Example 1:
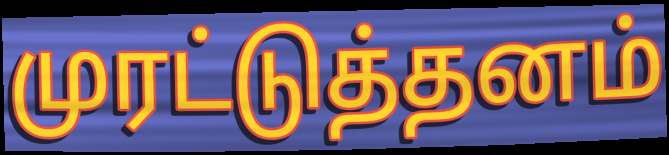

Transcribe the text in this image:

முரட்டுத்தனம்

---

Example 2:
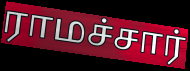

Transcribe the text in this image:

ராமச்சார்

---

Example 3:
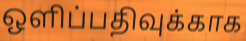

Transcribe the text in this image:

ஒளிப்பதிவுக்காக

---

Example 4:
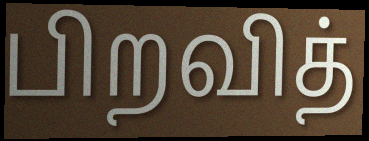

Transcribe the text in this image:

பிறவித்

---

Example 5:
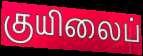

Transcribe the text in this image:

குயிலைப்